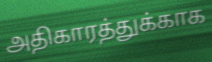
அதிகாரத்துக்காக